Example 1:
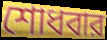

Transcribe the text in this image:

শোধবার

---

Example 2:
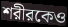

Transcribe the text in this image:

শরীরকেও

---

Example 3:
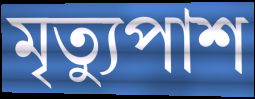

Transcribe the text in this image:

মৃত্যুপাশ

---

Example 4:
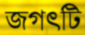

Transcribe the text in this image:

জগৎটি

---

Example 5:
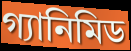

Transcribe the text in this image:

গ্যানিমিড